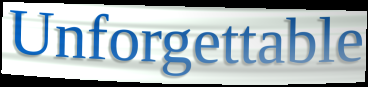
Unforgettable